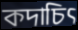
কদাচিৎ